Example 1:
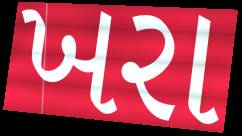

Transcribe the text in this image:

ખરા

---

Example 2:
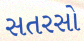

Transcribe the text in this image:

સતરસો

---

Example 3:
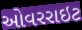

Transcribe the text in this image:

ઓવરરાઇટ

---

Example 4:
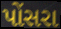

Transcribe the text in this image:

પોંસરા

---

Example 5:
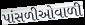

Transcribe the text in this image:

પાંસળીઓવાળી